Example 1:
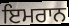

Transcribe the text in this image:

ਇਮਰਾਨ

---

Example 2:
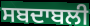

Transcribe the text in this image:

ਸਬਦਾਬਲੀ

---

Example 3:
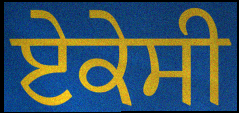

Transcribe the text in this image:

ਏਕੇਸੀ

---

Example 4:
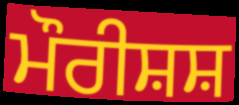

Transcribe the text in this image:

ਮੌਰੀਸ਼ਸ਼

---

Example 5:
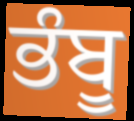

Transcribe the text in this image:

ਭੰਬੂ